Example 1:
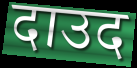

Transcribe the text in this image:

दाउद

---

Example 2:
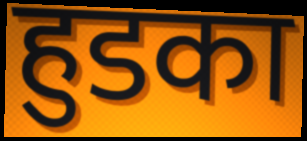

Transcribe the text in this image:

हुडका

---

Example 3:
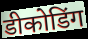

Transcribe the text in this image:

डीकोडिंग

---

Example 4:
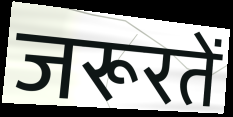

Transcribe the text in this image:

जरूरतें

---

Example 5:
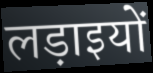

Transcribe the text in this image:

लड़ाइयों